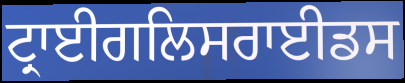
ਟ੍ਰਾਈਗਲਿਸਰਾਈਡਸ